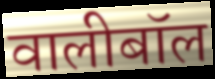
वालीबॉल